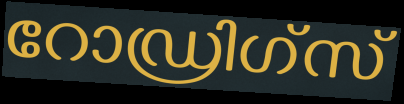
റോഡ്രിഗ്സ്